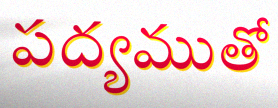
పద్యముతో